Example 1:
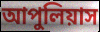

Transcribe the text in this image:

আপুলিয়াস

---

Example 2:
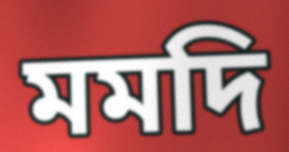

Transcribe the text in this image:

মমদি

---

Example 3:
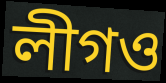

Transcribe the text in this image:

লীগও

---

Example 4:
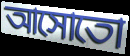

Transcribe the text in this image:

আসোতো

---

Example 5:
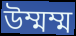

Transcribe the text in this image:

উম্মম্ম